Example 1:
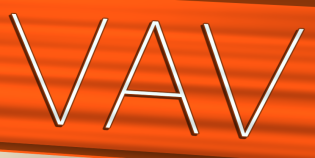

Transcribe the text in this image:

VAV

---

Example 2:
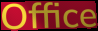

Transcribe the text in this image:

Office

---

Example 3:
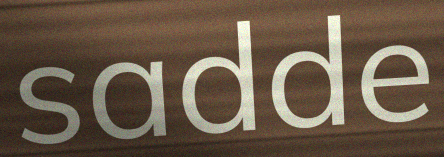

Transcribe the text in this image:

sadde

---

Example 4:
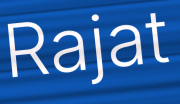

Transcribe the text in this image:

Rajat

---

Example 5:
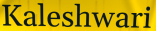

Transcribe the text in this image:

Kaleshwari